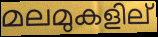
മലമുകളില്